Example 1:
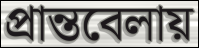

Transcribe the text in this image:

প্রান্তবেলায়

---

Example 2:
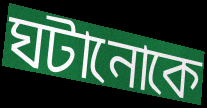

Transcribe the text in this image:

ঘটানোকে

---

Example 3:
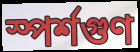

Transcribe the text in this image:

স্পর্শগুণ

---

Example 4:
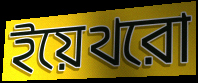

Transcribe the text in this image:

ইয়েথরো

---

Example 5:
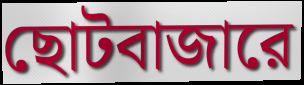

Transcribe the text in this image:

ছোটবাজারে